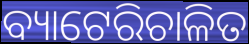
ବ୍ୟାଟେରିଚାଳିତ